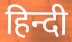
हिन्‍दी